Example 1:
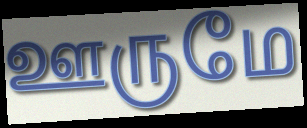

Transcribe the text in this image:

ஊருமே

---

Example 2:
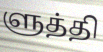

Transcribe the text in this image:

ளுத்தி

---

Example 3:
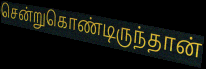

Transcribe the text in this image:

சென்றுகொண்டிருந்தான்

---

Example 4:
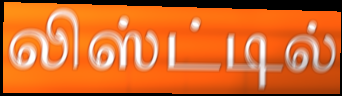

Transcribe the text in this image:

லிஸ்ட்டில்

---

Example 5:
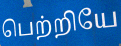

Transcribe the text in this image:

பெற்றியே